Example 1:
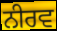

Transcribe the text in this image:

ਨੀਰਵ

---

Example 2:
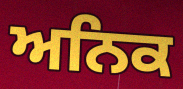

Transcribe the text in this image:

ਅਨਿਕ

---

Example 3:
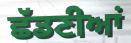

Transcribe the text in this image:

ਛੱਡਣੀਆਂ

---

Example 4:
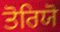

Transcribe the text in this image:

ਤੋਰਿਯੋ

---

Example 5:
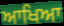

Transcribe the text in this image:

ਆਖਿਆ